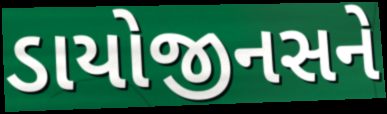
ડાયોજીનસને